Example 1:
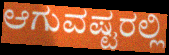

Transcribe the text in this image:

ಆಗುವಷ್ಟರಲ್ಲಿ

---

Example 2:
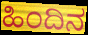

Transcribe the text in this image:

ಹಿಂದಿನ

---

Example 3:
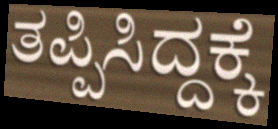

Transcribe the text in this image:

ತಪ್ಪಿಸಿದ್ದಕ್ಕೆ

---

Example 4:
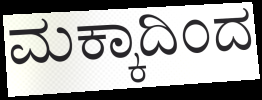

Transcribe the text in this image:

ಮಕ್ಕಾದಿಂದ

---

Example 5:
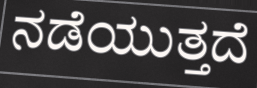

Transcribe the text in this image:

ನಡೆಯುತ್ತದೆ